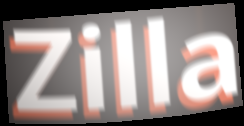
Zilla